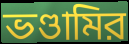
ভণ্ডামির